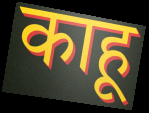
काहू